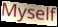
Myself